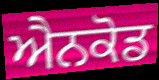
ਐਨਕੋਡ